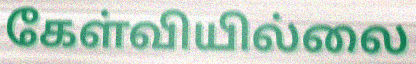
கேள்வியில்லை